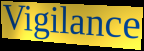
Vigilance